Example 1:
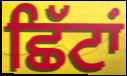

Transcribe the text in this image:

ਛਿੱਟਾਂ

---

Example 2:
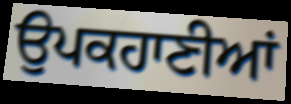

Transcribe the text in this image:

ਉਪਕਹਾਣੀਆਂ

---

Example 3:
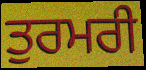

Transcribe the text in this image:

ਤੁਰਮਰੀ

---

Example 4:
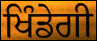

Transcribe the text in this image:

ਖਿੰਡੇਗੀ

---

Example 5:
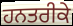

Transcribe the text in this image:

ਹਨਤਰੀਕੇ